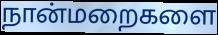
நான்மறைகளை